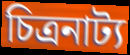
চিত্রনাট্য